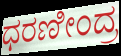
ಧರಣೀಂದ್ರ